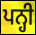
ਪਨ੍ਹੀ